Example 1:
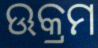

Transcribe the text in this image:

ଊକ୍ରମ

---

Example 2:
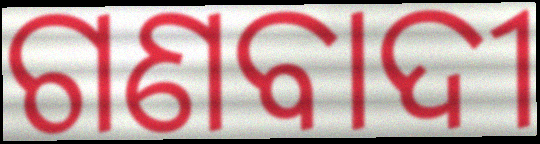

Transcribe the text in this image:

ଗଣବାଦୀ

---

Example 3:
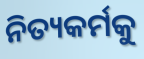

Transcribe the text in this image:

ନିତ୍ୟକର୍ମକୁ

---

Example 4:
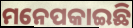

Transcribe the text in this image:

ମନେପକାଇଛି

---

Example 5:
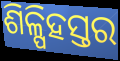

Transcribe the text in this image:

ଶିଳ୍ପିହସ୍ତର